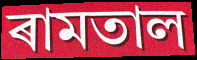
ৰামতাল